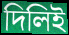
দিলিই